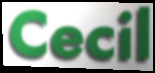
Cecil